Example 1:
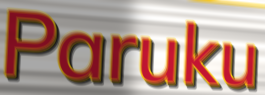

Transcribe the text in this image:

Paruku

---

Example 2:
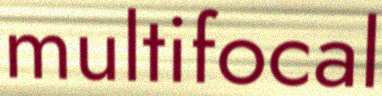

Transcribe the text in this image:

multifocal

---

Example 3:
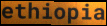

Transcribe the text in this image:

ethiopia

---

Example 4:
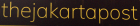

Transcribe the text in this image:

thejakartapost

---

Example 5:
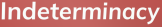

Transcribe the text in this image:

Indeterminacy